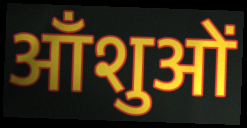
आँशुओं